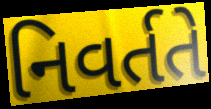
નિવર્તતે